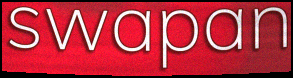
swapan